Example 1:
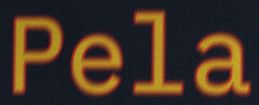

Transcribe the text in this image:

Pela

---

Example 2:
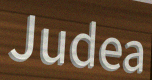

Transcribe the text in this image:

Judea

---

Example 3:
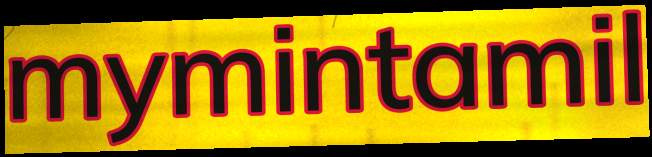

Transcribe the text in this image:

mymintamil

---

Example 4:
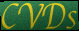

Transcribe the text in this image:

CVDs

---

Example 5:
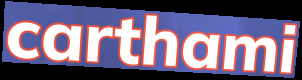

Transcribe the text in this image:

carthami